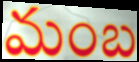
మంబ